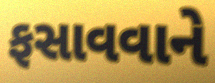
ફસાવવાને